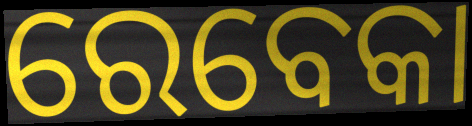
ରେବେକା